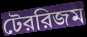
টেররিজম